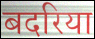
बदरिया